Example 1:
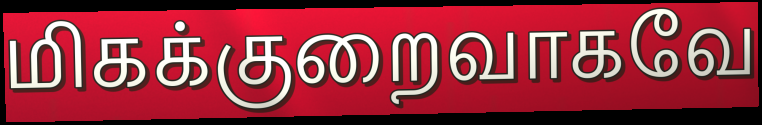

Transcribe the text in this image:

மிகக்குறைவாகவே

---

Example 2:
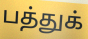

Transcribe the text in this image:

பத்துக்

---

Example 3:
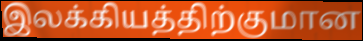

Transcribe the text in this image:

இலக்கியத்திற்குமான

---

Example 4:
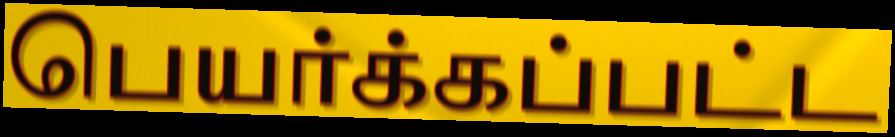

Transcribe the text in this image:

பெயர்க்கப்பட்ட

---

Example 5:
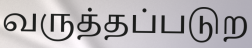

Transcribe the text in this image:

வருத்தப்படுற